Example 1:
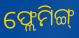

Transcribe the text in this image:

ଫ୍ଲେମିଙ୍ଗ୍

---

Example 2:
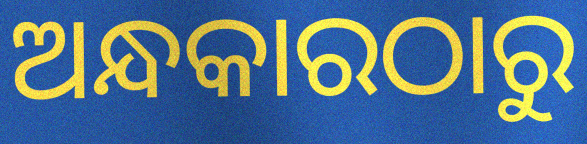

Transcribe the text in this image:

ଅନ୍ଧକାରଠାରୁ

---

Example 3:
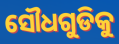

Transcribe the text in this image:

ସୌଧଗୁଡିକୁ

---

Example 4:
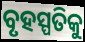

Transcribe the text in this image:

ବୃହସ୍ପତିକୁ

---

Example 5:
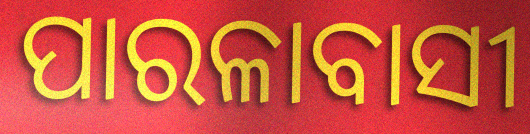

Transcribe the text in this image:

ପାରଳାବାସୀ